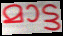
മാട്ട